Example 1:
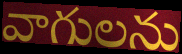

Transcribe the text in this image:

వాగులను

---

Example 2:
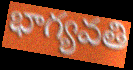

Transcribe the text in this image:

భాగ్యవతి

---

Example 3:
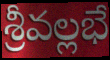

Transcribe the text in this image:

శ్రీవల్లభే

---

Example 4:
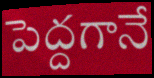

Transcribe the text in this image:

పెద్దగానే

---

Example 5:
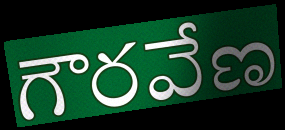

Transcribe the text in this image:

గౌరవేణ